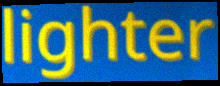
lighter